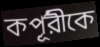
কর্পূরীকে